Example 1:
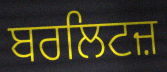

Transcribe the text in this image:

ਬਰਲਿਟਜ਼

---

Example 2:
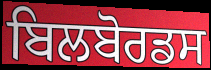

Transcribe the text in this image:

ਬਿਲਬੋਰਡਸ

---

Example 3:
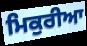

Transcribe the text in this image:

ਮਿਕੁਰੀਆ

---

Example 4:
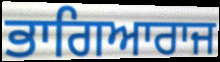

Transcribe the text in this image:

ਭਾਗਿਆਰਾਜ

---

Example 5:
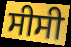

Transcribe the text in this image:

ਸੀਸੀ